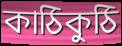
কাঠিকুঠি